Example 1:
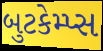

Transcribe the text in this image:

બુટકેમ્પ્સ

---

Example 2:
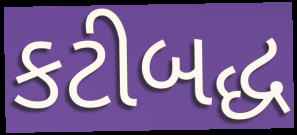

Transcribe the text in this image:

કટીબદ્ધ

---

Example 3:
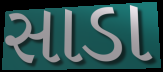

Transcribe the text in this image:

સાડા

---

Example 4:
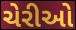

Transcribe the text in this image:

ચેરીઓ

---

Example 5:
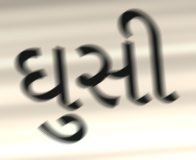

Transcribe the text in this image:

ઘુસી